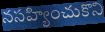
నసహ్యించుకొని